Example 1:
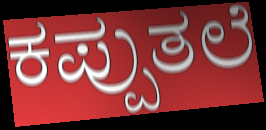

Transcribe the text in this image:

ಕಪ್ಪುತಲೆ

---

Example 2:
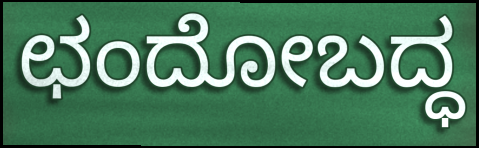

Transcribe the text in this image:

ಛಂದೋಬದ್ಧ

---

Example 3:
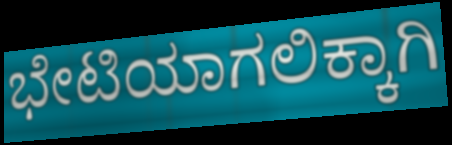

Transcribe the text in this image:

ಭೇಟಿಯಾಗಲಿಕ್ಕಾಗಿ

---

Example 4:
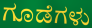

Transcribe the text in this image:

ಗೂಡೆಗಳು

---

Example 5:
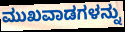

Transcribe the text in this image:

ಮುಖವಾಡಗಳನ್ನು